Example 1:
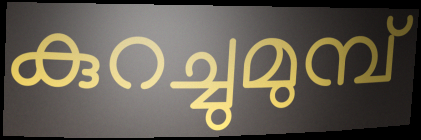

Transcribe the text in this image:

കുറച്ചുമുമ്പ്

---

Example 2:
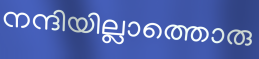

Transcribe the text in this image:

നന്ദിയില്ലാത്തൊരു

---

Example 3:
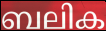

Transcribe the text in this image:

ബലിക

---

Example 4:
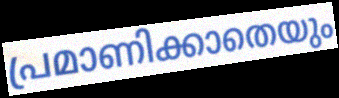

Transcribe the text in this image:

പ്രമാണിക്കാതെയും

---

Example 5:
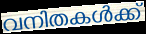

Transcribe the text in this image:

വനിതകൾക്ക്